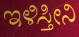
ಇಳಿಸ್ತೀನಿ